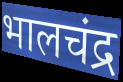
भालचंद्र